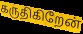
கருதிகிறேன்